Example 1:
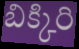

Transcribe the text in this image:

బిక్కిరి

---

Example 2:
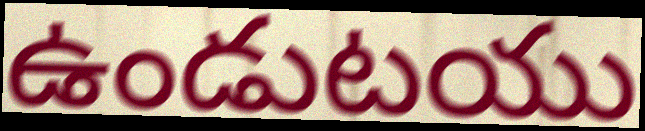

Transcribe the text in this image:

ఉండుటయు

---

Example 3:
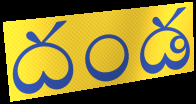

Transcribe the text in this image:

దండ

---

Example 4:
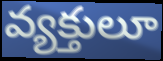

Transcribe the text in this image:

వ్యక్తులూ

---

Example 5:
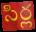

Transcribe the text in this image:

సిర్ల